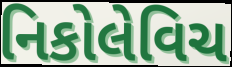
નિકોલેવિચ